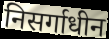
निसर्गाधीन